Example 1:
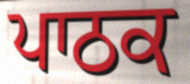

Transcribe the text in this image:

ਪਾਠਕ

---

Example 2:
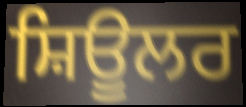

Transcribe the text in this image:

ਸ਼ਿਊਲਰ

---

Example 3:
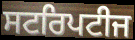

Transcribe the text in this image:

ਸਟਰਿਪਟੀਜ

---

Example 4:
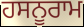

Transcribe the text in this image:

ਹਸਨੂਰਾਮ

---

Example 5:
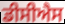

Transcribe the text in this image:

ਡੀਸੀਐਸ